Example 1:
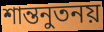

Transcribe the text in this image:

শান্তনুতনয়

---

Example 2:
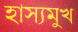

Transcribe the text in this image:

হাস্যমুখ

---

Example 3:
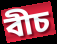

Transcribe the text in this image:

বীচ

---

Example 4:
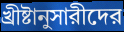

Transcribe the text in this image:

খ্রীষ্টানুসারীদের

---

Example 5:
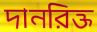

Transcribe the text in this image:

দানরিক্ত